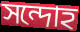
সন্দোহ